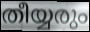
തീയ്യരും